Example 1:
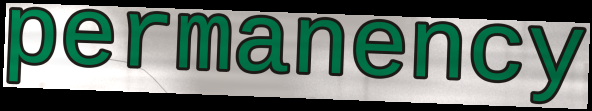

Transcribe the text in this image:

permanency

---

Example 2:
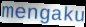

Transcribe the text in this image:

mengaku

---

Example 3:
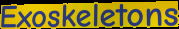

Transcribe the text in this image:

Exoskeletons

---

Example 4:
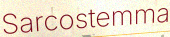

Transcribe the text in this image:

Sarcostemma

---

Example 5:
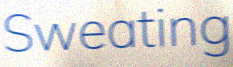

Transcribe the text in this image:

Sweating